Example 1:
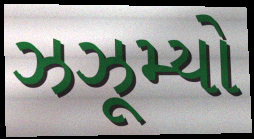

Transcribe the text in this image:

ઝઝૂમ્યો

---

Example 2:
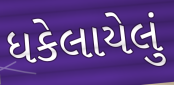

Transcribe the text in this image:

ધકેલાયેલું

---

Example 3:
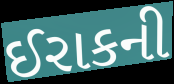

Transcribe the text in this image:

ઈરાકની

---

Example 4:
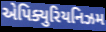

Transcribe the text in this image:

એપિક્યુરિયનિઝમ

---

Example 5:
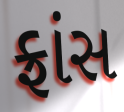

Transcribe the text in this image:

ફ્રાંસ